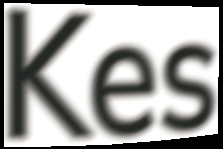
Kes